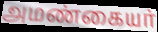
அமண்கையர்